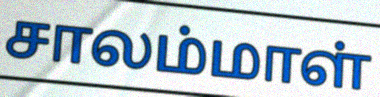
சாலம்மாள்